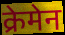
क्रेमेन